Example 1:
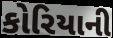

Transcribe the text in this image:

કોરિયાની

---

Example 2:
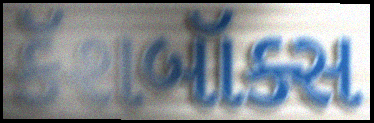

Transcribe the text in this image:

કૅશબૉક્સ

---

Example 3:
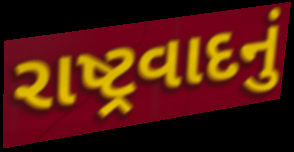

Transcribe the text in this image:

રાષ્ટ્રવાદનું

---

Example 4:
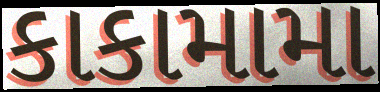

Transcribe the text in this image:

કાકામામા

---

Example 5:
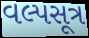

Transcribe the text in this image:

વલ્પસૂત્ર